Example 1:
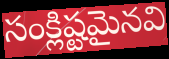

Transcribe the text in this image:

సంక్లిష్టమైనవి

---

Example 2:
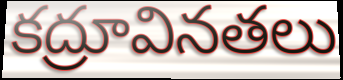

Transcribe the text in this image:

కద్రూవినతలు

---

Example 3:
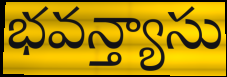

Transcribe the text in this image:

భవన్త్యాసు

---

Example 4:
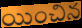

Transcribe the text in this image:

యించిన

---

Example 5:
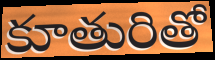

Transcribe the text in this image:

కూతురితో